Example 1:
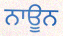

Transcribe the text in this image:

ਨਾਊਨ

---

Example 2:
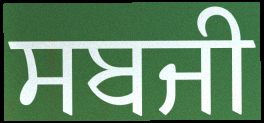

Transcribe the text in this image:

ਸਬਜੀ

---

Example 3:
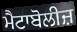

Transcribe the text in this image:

ਮੈਟਾਬੋਲੀਜ਼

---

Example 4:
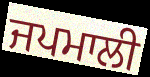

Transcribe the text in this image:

ਜਪਮਾਲੀ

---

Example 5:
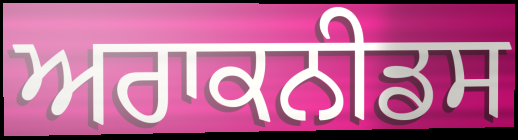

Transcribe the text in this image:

ਅਰਾਕਨੀਡਸ